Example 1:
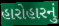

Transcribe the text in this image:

હારોહારનું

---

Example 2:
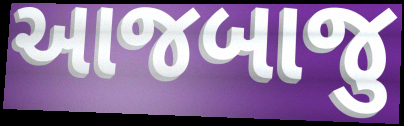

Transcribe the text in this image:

આજબાજુ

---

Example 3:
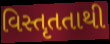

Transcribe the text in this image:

વિસ્તૃતતાથી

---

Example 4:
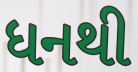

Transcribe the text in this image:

ધનથી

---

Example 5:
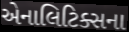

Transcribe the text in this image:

એનાલિટિક્સના